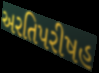
અરતિપરીષહ